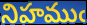
నిహముఁ